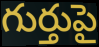
గుర్తుపై